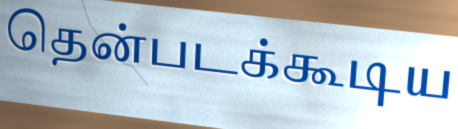
தென்படக்கூடிய